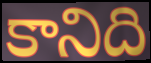
కానిది